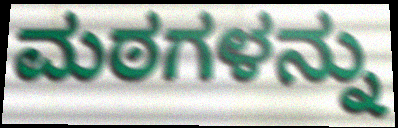
ಮಠಗಳನ್ನು